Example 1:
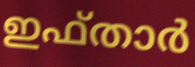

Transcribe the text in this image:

ഇഫ്താർ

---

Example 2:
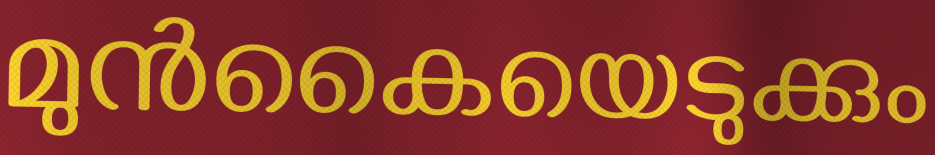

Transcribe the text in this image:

മുൻകൈയെടുക്കും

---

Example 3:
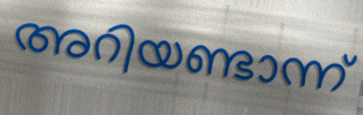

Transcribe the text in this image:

അറിയണ്ടാന്ന്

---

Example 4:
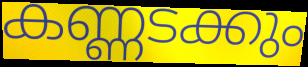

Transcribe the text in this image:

കണ്ണടക്കും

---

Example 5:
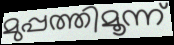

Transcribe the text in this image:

മുപ്പത്തിമൂന്ന്